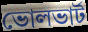
ভোলভার্ট